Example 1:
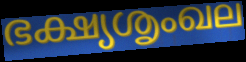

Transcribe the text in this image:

ഭക്ഷ്യശൃംഖല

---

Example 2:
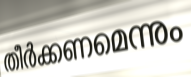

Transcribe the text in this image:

തീർക്കണമെന്നും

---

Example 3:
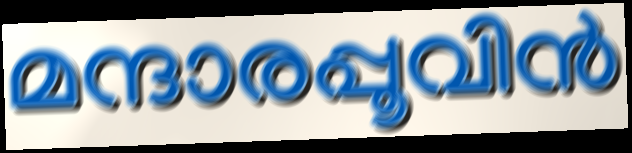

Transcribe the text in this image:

മന്ദാരപ്പൂവിൻ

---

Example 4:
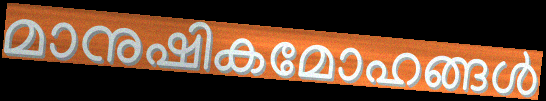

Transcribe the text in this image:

മാനുഷികമോഹങ്ങൾ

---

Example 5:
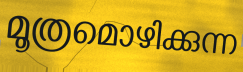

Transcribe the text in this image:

മൂത്രമൊഴിക്കുന്ന